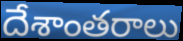
దేశాంతరాలు